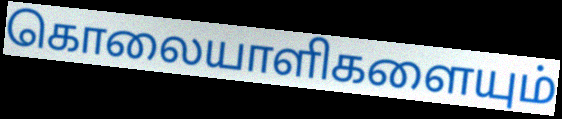
கொலையாளிகளையும்